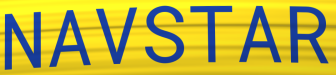
NAVSTAR